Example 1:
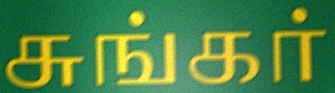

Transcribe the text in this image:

சுங்கர்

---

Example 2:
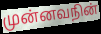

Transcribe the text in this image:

முன்னவநின்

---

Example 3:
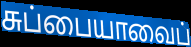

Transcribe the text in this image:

சுப்பையாவைப்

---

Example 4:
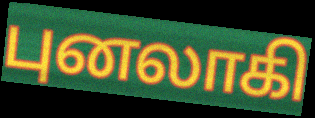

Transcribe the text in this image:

புனலாகி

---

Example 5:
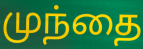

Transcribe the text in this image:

முந்தை